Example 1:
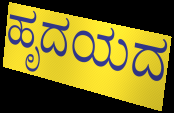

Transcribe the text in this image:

ಹೃದಯದ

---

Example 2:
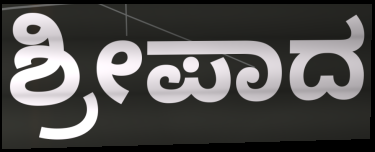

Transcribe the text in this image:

ಶ್ರೀಪಾದ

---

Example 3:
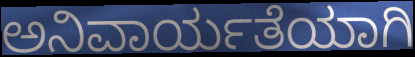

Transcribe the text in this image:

ಅನಿವಾರ್ಯತೆಯಾಗಿ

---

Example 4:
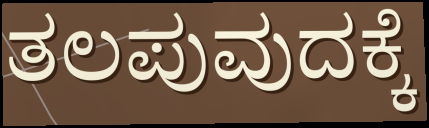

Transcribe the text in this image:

ತಲಪುವುದಕ್ಕೆ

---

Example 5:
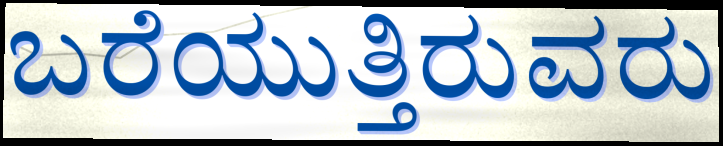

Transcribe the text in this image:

ಬರೆಯುತ್ತಿರುವರು